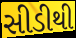
સીડીથી